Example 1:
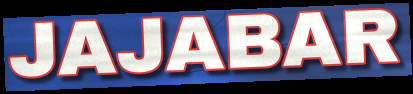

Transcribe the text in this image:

JAJABAR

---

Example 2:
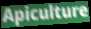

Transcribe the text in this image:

Apiculture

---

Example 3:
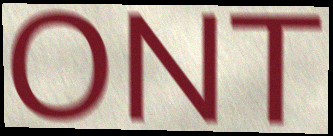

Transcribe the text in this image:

ONT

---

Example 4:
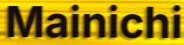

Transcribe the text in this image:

Mainichi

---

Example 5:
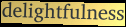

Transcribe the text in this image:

delightfulness